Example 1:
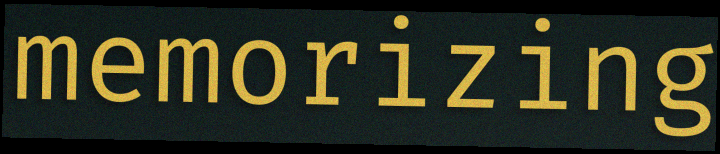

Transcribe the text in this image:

memorizing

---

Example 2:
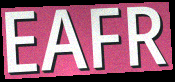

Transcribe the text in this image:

EAFR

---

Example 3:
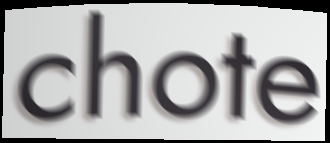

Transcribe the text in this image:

chote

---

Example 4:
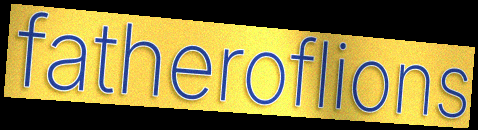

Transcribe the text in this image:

fatheroflions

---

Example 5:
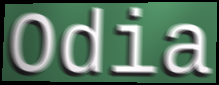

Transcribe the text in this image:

Odia